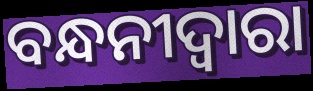
ବନ୍ଧନୀଦ୍ୱାରା